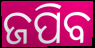
ଜପିବ